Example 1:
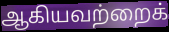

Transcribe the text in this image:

ஆகியவற்றைக்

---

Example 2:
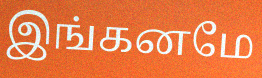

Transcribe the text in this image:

இங்கனமே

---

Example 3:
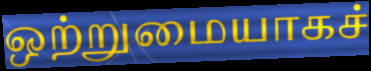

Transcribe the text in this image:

ஒற்றுமையாகச்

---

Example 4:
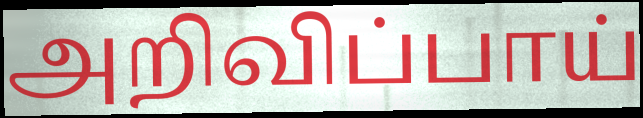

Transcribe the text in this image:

அறிவிப்பாய்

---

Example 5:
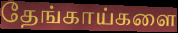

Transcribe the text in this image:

தேங்காய்களை